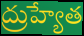
ద్రుహ్యేత